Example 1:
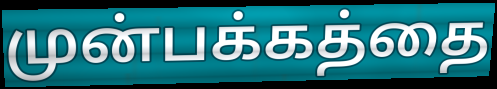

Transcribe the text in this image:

முன்பக்கத்தை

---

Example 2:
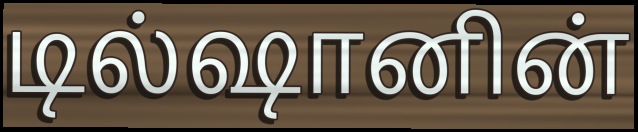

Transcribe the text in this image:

டில்ஷானின்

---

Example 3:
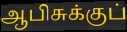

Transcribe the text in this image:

ஆபிசுக்குப்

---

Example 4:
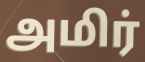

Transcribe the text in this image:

அமிர்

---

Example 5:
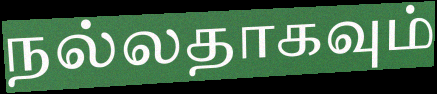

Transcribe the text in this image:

நல்லதாகவும்